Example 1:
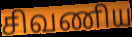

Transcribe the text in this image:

சிவணிய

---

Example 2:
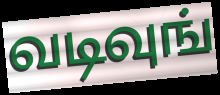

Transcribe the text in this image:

வடிவுங்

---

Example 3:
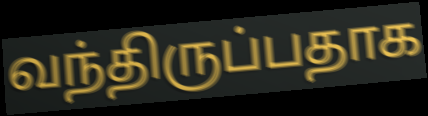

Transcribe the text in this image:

வந்திருப்பதாக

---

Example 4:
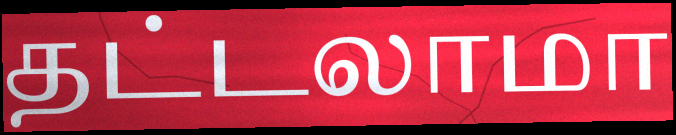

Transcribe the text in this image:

தட்டலாமா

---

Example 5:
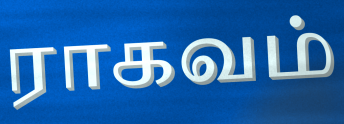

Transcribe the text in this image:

ராகவம்